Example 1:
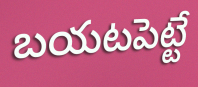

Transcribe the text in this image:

బయటపెట్టే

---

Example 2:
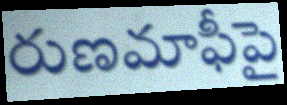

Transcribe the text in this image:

రుణమాఫీపై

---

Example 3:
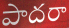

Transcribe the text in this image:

పాదరా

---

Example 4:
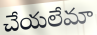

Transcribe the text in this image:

చేయలేమా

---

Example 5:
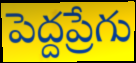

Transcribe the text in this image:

పెద్దప్రేగు